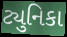
ટ્યુનિકા